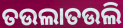
ତଉଲାତଉଲି